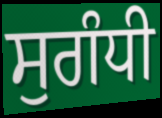
ਸੁਗੰਧੀ